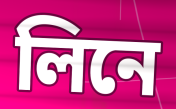
লিনে